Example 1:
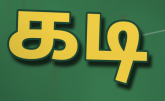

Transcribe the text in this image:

கடி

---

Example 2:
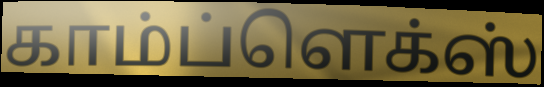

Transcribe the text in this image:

காம்ப்ளெக்ஸ்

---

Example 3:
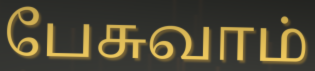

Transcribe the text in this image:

பேசுவாம்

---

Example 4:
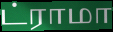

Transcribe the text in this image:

ட்ராமா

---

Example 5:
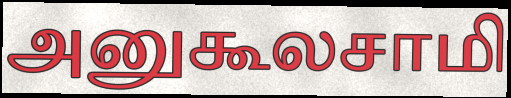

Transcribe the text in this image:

அனுகூலசாமி